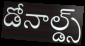
డోనాల్డ్స్